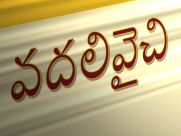
వదలివైచి